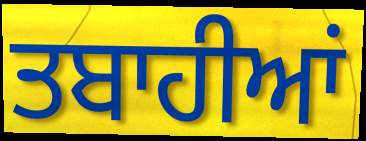
ਤਬਾਹੀਆਂ